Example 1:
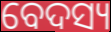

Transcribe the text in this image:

ବେଦସ୍ୟ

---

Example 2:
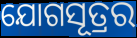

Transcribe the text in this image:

ଯୋଗସୂତ୍ରର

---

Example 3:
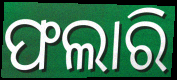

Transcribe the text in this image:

ଫଲାରି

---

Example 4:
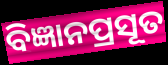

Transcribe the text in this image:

ବିଜ୍ଞାନପ୍ରସୂତ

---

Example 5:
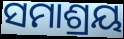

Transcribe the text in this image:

ସମାଶ୍ରୟ